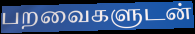
பறவைகளுடன்